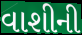
વાશીની